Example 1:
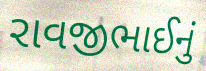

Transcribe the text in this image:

રાવજીભાઈનું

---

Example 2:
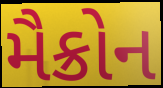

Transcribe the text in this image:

મૈક્રોન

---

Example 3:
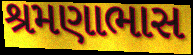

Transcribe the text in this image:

શ્રમણાભાસ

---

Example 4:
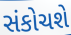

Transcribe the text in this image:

સંકોચશે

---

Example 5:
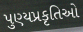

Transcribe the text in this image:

પુણ્યપ્રકૃતિઓ